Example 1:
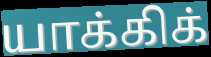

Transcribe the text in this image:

யாக்கிக்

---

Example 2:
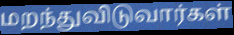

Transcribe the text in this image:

மறந்துவிடுவார்கள்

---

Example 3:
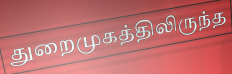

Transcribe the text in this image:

துறைமுகத்திலிருந்த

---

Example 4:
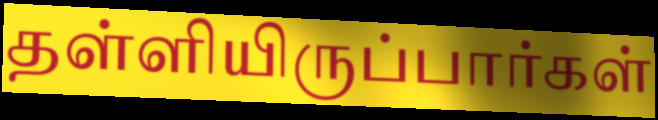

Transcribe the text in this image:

தள்ளியிருப்பார்கள்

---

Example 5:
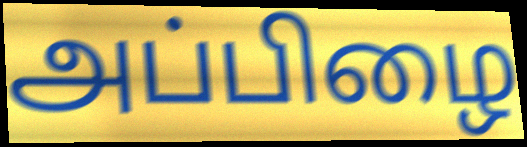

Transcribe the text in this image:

அப்பிழை